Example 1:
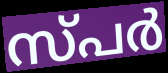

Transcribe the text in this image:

സ്പർ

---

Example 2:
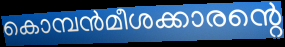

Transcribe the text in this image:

കൊമ്പൻമീശക്കാരന്റെ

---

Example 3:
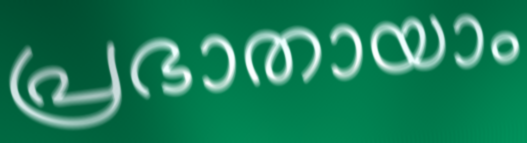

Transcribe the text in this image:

പ്രഭാതായാം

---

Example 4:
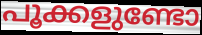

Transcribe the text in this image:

പൂക്കളുണ്ടോ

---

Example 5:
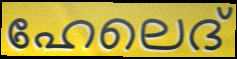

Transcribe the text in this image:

ഹേലെദ്